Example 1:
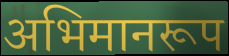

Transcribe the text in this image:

अभिमानरूप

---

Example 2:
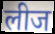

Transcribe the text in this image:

लीज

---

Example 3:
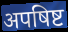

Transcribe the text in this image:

अपषिष्ट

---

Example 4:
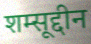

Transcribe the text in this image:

शम्सूद्दीन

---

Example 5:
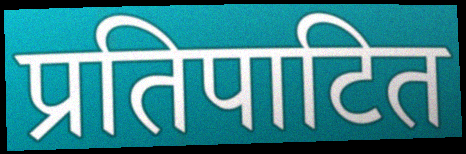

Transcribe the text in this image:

प्रतिपाटित